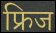
फ्रिज